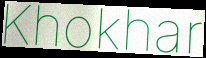
Khokhar